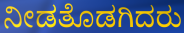
ನೀಡತೊಡಗಿದರು